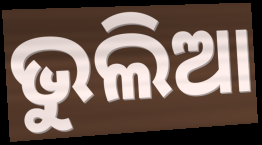
ଭୁଲିଆ